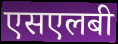
एसएलबी